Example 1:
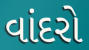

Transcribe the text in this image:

વાંદરો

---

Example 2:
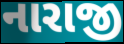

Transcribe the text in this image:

નારાજી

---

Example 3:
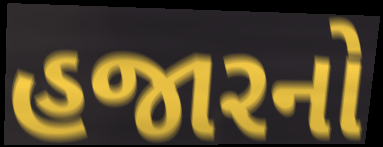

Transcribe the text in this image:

હજારનો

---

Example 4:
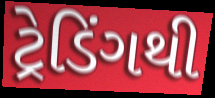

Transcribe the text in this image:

ટ્રેડિંગથી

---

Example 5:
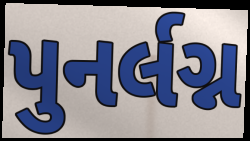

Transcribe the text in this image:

પુનર્લગ્ન